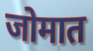
जोमात